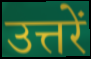
उत्तरें